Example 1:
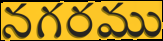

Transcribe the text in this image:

నగరము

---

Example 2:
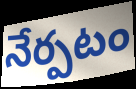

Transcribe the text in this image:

నేర్పటం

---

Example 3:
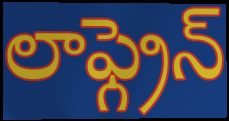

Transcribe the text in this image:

లాఫ్గ్రెన్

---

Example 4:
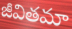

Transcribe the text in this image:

జీవితమా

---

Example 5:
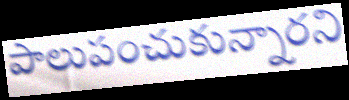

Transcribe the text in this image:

పాలుపంచుకున్నారని